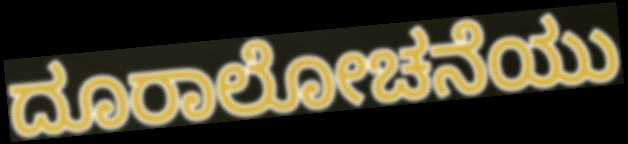
ದೂರಾಲೋಚನೆಯು